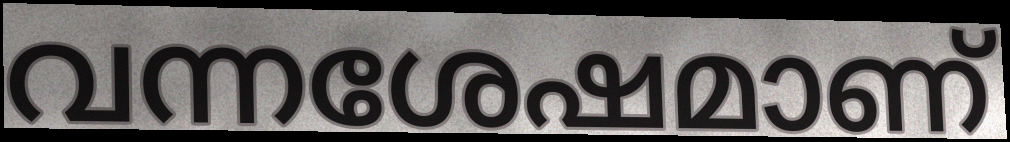
വന്നശേഷമാണ്